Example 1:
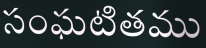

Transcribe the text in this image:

సంఘటితము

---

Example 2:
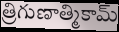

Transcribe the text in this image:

త్రిగుణాత్మికామ్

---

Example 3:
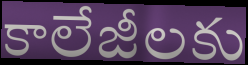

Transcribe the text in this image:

కాలేజీలకు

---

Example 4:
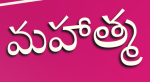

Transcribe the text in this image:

మహాత్మ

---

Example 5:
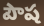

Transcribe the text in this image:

పౌష